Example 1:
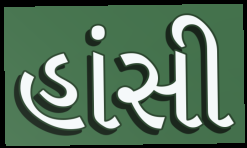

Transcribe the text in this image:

હાંસી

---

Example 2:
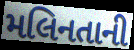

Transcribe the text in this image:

મલિનતાની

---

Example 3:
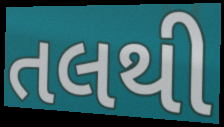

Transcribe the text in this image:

તલથી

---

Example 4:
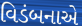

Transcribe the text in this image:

વિડંબનાએ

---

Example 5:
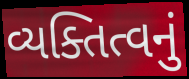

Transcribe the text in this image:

વ્યક્તિત્વનું